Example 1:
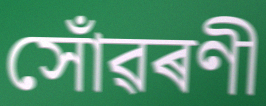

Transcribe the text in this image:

সোঁৱৰণী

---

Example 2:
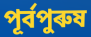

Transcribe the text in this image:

পূৰ্বপুৰুষ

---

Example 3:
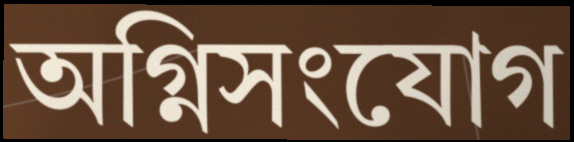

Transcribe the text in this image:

অগ্নিসংযোগ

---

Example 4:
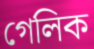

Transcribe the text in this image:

গেলিক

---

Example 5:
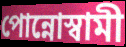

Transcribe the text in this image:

পোন্নোস্বামী